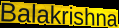
Balakrishna